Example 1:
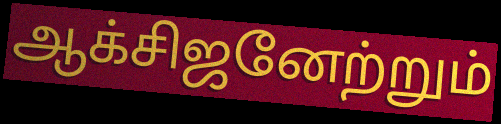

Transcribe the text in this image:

ஆக்சிஜனேற்றும்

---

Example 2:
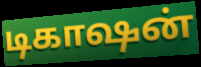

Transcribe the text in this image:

டிகாஷன்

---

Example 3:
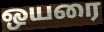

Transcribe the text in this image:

ஒயரை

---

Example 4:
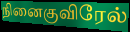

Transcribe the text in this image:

நினைகுவிரேல்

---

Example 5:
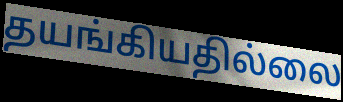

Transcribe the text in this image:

தயங்கியதில்லை